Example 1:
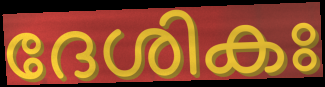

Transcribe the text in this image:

ദേശികഃ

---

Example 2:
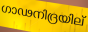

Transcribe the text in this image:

ഗാഢനിദ്രയില്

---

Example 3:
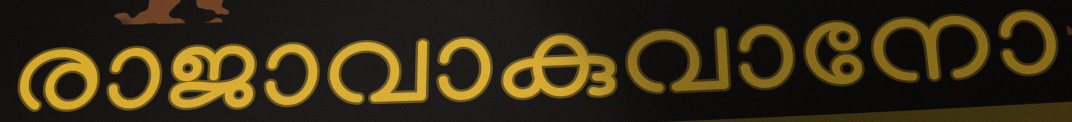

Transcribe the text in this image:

രാജാവാകുവാനോ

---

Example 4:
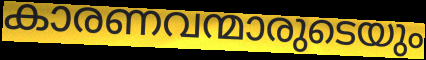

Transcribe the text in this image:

കാരണവന്മാരുടെയും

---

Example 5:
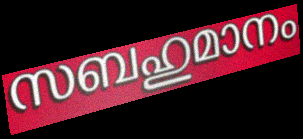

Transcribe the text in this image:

സബഹുമാനം